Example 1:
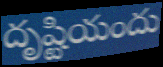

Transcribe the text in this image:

దృష్టియందు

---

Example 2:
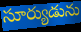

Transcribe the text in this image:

సూర్యుడును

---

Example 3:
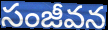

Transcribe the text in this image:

సంజీవన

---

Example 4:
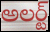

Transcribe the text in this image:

అలర్ట్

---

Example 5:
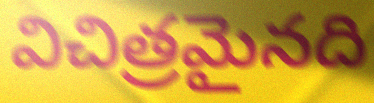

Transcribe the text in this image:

విచిత్రమైనది